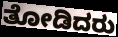
ತೋಡಿದರು